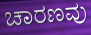
ಚಾರಣವು